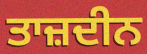
ਤਾਜ਼ਦੀਨ